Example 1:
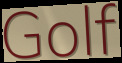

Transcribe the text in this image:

Golf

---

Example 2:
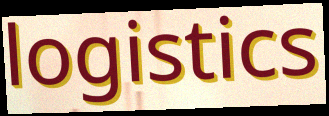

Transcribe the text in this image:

logistics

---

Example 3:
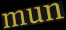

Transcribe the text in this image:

mun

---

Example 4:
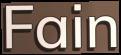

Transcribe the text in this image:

Fain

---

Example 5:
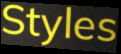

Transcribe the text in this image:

Styles